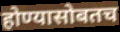
होण्यासोबतच